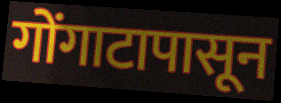
गोंगाटापासून